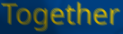
Together